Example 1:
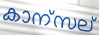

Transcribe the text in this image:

കാന്സല്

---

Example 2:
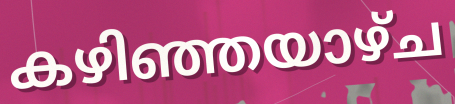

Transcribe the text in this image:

കഴിഞ്ഞയാഴ്ച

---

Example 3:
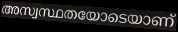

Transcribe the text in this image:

അസ്വസ്ഥതയോടെയാണ്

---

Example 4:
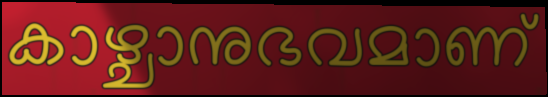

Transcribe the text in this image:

കാഴ്ചാനുഭവമാണ്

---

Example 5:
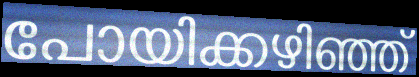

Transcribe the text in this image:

പോയിക്കഴിഞ്ഞ്